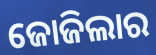
ଜୋଜିଲାର